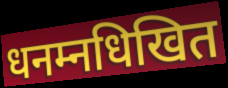
धनम्नधिखित